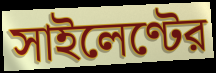
সাইলেণ্টের